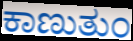
ಕಾಣುತುಂ